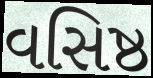
વસિષ્ઠ